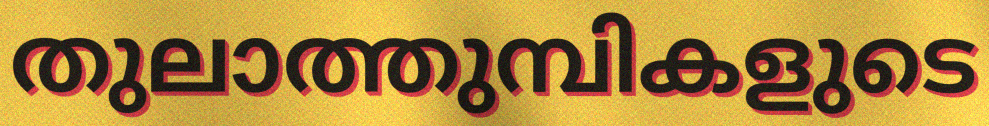
തുലാത്തുമ്പികളുടെ